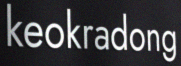
keokradong